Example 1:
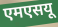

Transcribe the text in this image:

एमएसयू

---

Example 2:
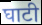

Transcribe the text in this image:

घाटी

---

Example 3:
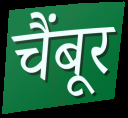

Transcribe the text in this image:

चैंबूर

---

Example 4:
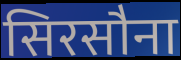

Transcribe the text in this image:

सिरसौना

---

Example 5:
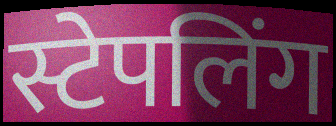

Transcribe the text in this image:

स्टेपलिंग